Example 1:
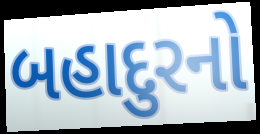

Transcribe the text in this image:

બહાદુરનો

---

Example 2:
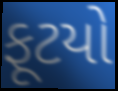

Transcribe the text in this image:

ફૂટયો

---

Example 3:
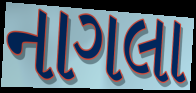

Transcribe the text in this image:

નાગલા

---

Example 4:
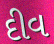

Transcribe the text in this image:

દીવ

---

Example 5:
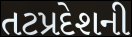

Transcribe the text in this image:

તટપ્રદેશની